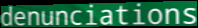
denunciations